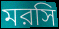
মরসি